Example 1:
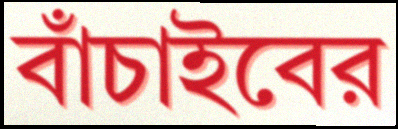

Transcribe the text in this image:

বাঁচাইবের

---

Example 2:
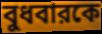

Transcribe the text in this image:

বুধবারকে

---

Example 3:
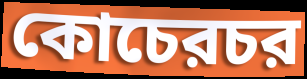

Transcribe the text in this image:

কোচেরচর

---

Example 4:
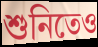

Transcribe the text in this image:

শুনিতেও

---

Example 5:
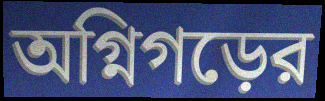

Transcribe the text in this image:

অগ্নিগড়ের